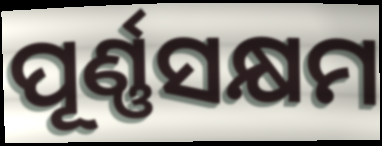
ପୂର୍ଣ୍ଣସକ୍ଷମ